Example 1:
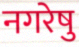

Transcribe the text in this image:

नगरेषु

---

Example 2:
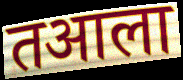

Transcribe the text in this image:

तआला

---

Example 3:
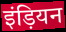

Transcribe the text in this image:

इंड़ियन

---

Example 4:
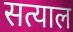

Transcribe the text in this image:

सत्याल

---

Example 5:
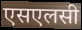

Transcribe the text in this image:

एसएलसी